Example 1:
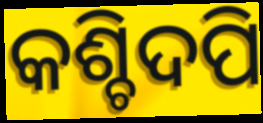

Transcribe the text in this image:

କଶ୍ଚିଦପି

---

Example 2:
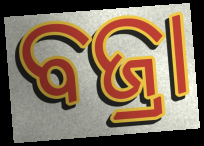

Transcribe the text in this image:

ବଜ୍ରା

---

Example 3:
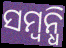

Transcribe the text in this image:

ସମ୍ବନ୍ଧି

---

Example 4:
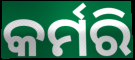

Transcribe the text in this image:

କର୍ମରି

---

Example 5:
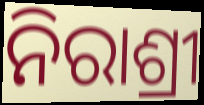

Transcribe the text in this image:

ନିରାଶ୍ରୀ